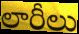
లారీలు